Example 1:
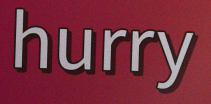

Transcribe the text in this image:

hurry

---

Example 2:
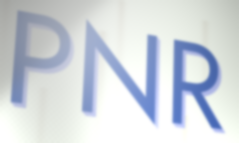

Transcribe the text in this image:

PNR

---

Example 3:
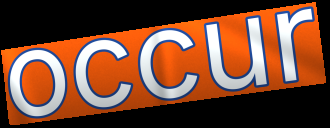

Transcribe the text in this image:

occur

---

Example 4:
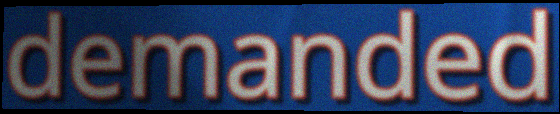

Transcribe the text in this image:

demanded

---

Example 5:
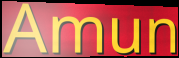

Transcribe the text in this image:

Amun